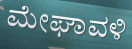
ಮೇಘಾವಳಿ